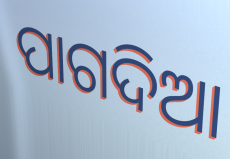
ପାଗଦିଆ